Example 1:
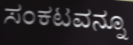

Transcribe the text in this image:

ಸಂಕಟವನ್ನೂ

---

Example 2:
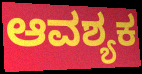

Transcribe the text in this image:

ಆವಶ್ಯಕ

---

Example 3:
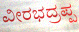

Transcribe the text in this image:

ವೀರಭದ್ರಪ್ಪ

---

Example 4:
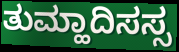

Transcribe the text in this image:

ತುಮ್ಹಾದಿಸಸ್ಸ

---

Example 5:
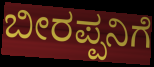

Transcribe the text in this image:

ಬೀರಪ್ಪನಿಗೆ